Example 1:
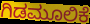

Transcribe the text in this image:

ಗಿಡಮೂಲಿಕೆ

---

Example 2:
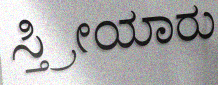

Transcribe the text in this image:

ಸ್ತ್ರೀಯಾರು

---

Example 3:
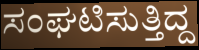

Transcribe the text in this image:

ಸಂಘಟಿಸುತ್ತಿದ್ದ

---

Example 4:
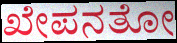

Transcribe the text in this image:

ಖೇಪನತೋ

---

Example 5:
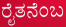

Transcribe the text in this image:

ರೈತನೆಂಬ